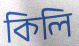
কিলি